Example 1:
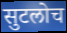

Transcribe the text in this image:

सुटलोच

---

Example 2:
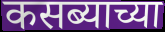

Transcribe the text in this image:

कसब्याच्या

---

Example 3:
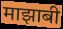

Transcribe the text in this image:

माझाबी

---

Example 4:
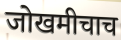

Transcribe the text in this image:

जोखमीचाच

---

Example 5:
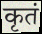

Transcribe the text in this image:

कृतं